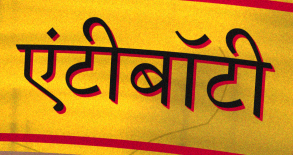
एंटीबॉटी